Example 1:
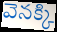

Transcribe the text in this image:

వెనక్కి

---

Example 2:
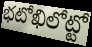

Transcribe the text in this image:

భటోఖిలోట్టో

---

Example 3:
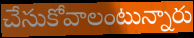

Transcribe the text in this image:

చేసుకోవాలంటున్నారు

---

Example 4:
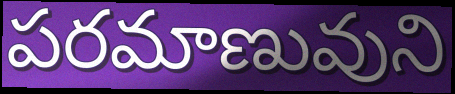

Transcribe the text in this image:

పరమాణువుని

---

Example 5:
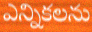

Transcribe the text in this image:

ఎన్నికలను